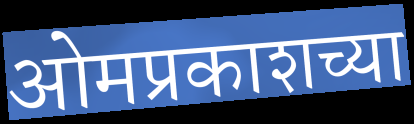
ओमप्रकाशच्या